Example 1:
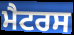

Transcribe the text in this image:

ਮੈਟਰਸ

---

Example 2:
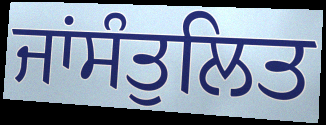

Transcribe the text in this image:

ਜਾਂਸੰਤੁਲਿਤ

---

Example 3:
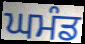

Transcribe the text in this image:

ਘਮੰਡ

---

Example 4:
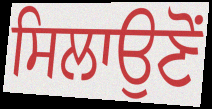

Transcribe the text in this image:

ਸਿਲਾਉਣੋਂ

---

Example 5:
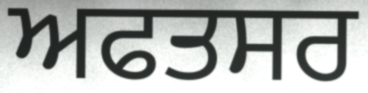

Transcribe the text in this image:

ਅਫਤਸਰ